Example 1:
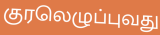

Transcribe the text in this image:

குரலெழுப்புவது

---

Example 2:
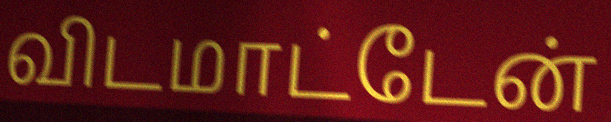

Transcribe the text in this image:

விடமாட்டேன்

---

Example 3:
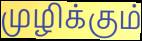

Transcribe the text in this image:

முழிக்கும்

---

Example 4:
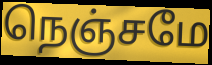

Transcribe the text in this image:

நெஞ்சமே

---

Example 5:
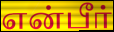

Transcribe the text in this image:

என்பீர்